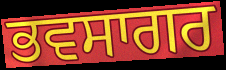
ਭਵਸਾਗਰ